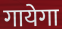
गायेगा